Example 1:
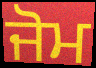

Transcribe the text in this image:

ਜੋਮ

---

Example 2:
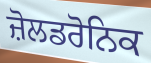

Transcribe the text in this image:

ਜ਼ੋਲਡਰੋਨਿਕ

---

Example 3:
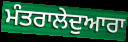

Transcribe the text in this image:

ਮੰਤਰਾਲੇਦੁਆਰਾ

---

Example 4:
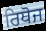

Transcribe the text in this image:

ਰਿਥੋਜ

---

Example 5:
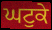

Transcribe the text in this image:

ਘਟੁਕੇ